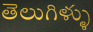
తెలుగిళ్ళు